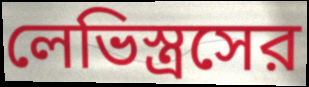
লেভিস্ত্রসের